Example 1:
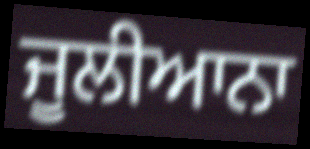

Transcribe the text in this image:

ਜੂਲੀਆਨਾ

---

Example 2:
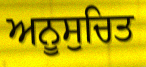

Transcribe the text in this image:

ਅਨੂਸੁਚਿਤ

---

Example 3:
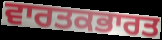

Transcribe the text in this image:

ਵਾਰਤਕਭਾਰਤ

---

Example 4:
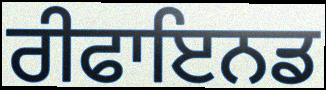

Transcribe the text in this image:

ਰੀਫਾਇਨਡ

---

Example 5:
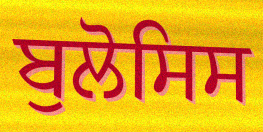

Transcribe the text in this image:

ਬੁਲੋਸਿਸ